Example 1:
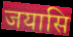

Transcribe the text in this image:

जयासि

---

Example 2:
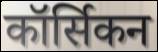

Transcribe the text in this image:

कॉर्सिकन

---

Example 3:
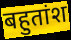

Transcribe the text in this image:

बहुतांश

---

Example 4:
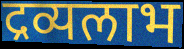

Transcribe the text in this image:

द्रव्यलाभ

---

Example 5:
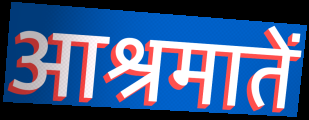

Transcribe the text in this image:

आश्रमातें